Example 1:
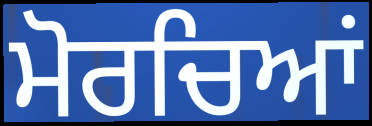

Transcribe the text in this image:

ਮੋਰਚਿਆਂ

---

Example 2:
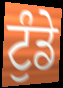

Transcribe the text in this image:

ਟੁੰਡੇ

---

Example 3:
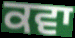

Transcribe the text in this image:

ਕਵਾ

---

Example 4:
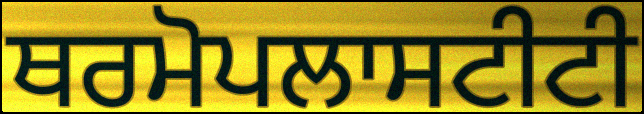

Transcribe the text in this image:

ਥਰਮੋਪਲਾਸਟੀਟੀ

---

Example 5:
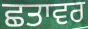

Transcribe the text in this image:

ਛਤਾਵਰ